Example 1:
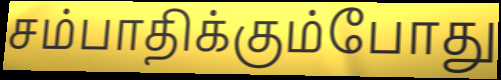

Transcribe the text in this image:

சம்பாதிக்கும்போது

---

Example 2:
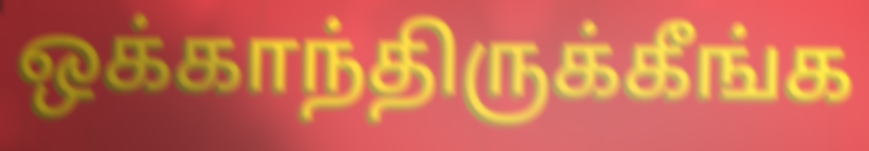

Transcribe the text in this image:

ஒக்காந்திருக்கீங்க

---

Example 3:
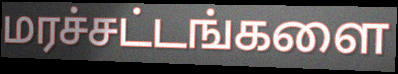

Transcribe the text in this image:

மரச்சட்டங்களை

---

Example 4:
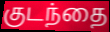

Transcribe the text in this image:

குடந்தை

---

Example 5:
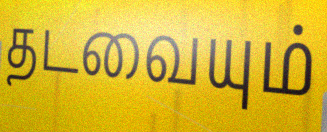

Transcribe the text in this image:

தடவையும்